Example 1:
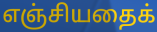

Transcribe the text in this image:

எஞ்சியதைக்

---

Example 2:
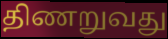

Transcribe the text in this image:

திணறுவது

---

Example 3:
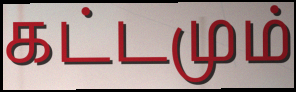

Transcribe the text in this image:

கட்டமும்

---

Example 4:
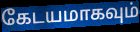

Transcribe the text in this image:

கேடயமாகவும்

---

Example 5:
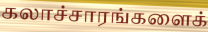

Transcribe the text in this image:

கலாச்சாரங்களைக்